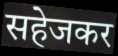
सहेजकर